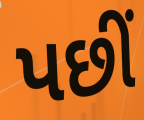
પછીં